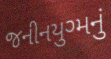
જનીનયુગ્મનું